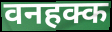
वनहक्क